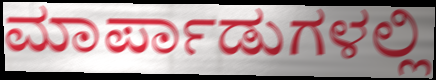
ಮಾರ್ಪಾಡುಗಳಲ್ಲಿ